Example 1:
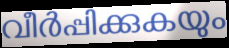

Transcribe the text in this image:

വീർപ്പിക്കുകയും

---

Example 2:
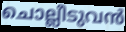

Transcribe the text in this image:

ചൊല്ലീടുവൻ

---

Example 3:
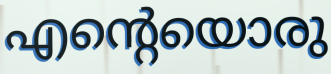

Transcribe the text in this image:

എന്റെയൊരു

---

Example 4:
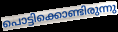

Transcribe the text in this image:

പൊട്ടിക്കൊണ്ടിരുന്നു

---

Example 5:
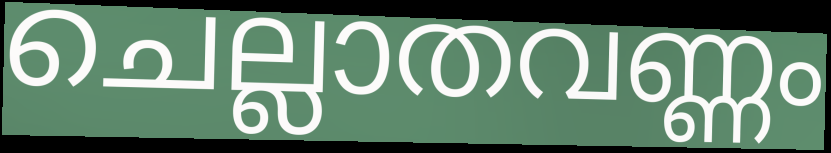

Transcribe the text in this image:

ചെല്ലാതവണ്ണം